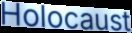
Holocaust